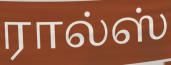
ரால்ஸ்